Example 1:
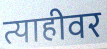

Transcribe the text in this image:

त्याहीवर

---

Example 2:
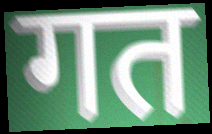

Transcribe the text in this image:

गत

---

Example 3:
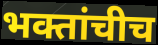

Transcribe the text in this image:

भक्तांचीच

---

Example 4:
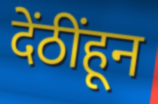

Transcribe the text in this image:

देंठींहून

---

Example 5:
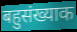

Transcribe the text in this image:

बहुसंख्याक